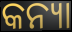
କନ୍ୟା